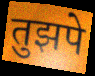
तुझपे